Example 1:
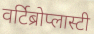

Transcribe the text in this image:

वर्टिब्रोप्लास्टी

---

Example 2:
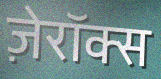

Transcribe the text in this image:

ज़ेरॉक्स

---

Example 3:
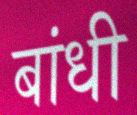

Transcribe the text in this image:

बांधी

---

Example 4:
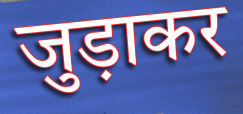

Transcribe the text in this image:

जुड़ाकर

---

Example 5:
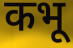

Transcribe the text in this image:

कभू